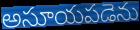
అసూయపడెను